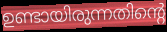
ഉണ്ടായിരുന്നതിന്റെ